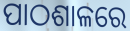
ପାଠଶାଳରେ